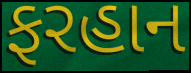
ફરહાન